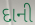
દાની